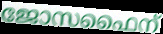
ജോസഫൈന്